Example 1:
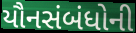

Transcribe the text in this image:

યૌનસંબંધોની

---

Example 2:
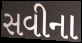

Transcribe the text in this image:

સવીના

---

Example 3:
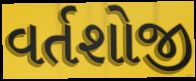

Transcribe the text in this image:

વર્તશોજી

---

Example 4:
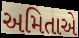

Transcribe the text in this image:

અમિતાએ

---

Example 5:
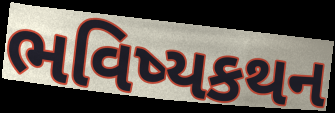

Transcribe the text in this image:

ભવિષ્યકથન